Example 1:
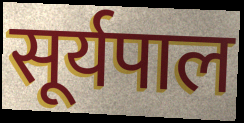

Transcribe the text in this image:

सूर्यपाल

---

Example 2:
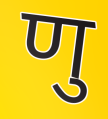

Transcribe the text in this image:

णु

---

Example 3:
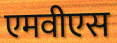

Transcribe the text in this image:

एमवीएस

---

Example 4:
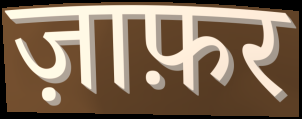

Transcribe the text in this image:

ज़ाफ़र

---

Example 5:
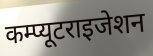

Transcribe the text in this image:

कम्प्यूटराइजेशन